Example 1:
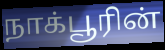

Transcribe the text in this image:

நாக்பூரின்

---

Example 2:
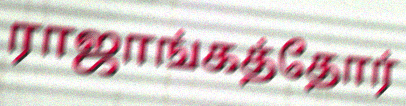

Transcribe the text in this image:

ராஜாங்கத்தோர்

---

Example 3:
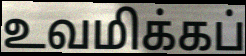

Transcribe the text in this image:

உவமிக்கப்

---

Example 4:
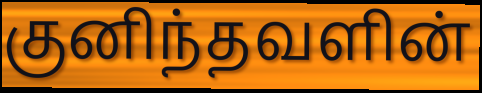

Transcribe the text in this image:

குனிந்தவளின்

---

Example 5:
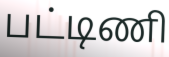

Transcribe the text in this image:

பட்டிணி